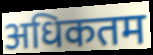
अधिकतम